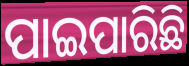
ପାଇପାରିଛି